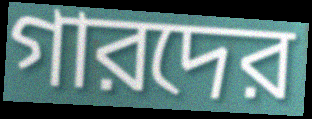
গারদের